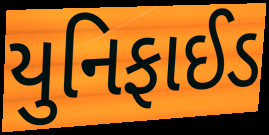
યુનિફાઈડ